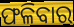
ଫଳିବାର